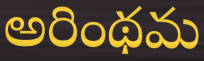
అరింథమ